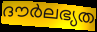
ദൗർലഭ്യത